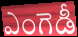
ఎంగెడీ